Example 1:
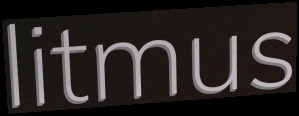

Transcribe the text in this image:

litmus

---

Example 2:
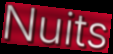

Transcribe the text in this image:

Nuits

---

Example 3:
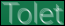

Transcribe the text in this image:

Tolet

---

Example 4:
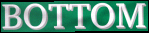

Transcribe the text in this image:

BOTTOM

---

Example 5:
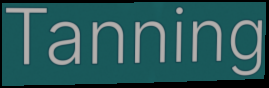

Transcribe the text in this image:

Tanning